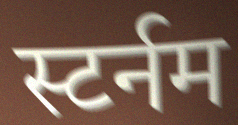
स्टर्नम